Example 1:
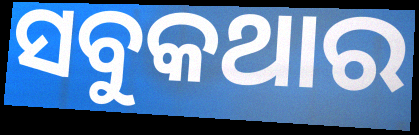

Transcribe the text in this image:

ସବୁକଥାର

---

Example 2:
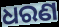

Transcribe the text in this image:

ଧରଣ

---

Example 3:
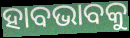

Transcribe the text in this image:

ହାବଭାବକୁ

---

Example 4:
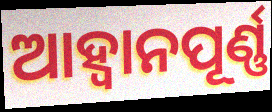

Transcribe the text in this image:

ଆହ୍ବାନପୂର୍ଣ୍ଣ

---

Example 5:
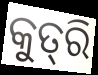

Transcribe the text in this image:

କୁତ୍‌ରି